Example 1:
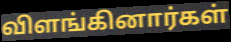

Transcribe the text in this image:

விளங்கினார்கள்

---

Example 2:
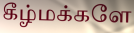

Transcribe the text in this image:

கீழ்மக்களே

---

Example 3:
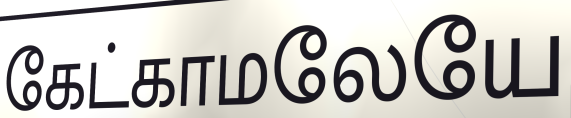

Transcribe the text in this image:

கேட்காமலேயே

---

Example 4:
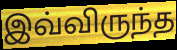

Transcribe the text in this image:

இவ்விருந்த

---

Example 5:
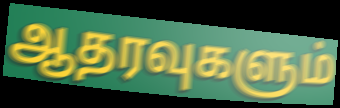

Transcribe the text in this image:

ஆதரவுகளும்